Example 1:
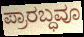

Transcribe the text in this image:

ಪ್ರಾರಬ್ಧವೂ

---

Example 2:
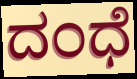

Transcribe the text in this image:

ದಂಧೆ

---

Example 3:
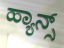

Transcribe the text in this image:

ಹ್ಯಾನ್ಸ್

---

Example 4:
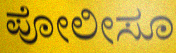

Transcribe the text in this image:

ಪೋಲೀಸೂ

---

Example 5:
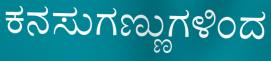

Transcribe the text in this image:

ಕನಸುಗಣ್ಣುಗಳಿಂದ